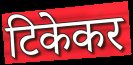
टिकेकर